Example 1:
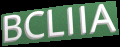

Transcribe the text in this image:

BCLIIA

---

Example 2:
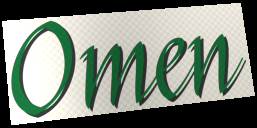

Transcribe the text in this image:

Omen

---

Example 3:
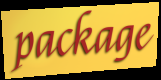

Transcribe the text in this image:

package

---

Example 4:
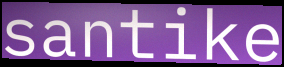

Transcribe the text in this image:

santike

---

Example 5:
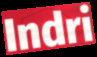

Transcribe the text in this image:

Indri